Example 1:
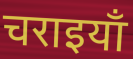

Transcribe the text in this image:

चराइयाँ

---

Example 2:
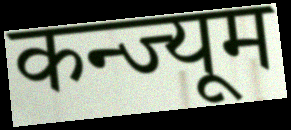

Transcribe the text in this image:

कन्ज्यूम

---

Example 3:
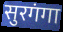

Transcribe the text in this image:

सुरगंगा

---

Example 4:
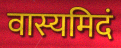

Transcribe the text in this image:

वास्यमिदं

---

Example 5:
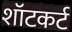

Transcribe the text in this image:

शॉटकर्ट